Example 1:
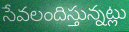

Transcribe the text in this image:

సేవలందిస్తున్నట్లు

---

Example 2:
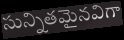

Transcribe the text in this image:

సున్నితమైనవిగా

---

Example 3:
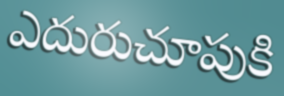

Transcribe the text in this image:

ఎదురుచూపుకి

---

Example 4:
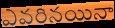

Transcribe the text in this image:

ఎవరినయినా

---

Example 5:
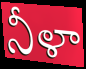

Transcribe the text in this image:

నీళా